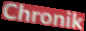
Chronik